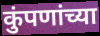
कुंपणांच्या